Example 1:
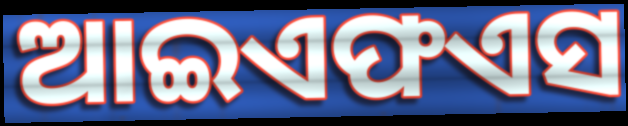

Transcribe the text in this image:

ଆଇଏଫଏସ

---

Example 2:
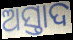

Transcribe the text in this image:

ଅସ୍ତାଦ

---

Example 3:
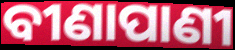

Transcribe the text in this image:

ବୀଣାପାଣୀ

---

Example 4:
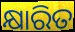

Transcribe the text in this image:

କ୍ଷାରିତ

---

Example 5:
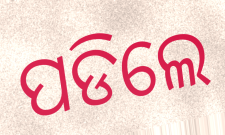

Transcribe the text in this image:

ପଡିଲେ